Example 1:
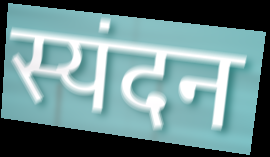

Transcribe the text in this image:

स्यंदन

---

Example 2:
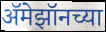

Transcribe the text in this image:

ॲमेझॉनच्या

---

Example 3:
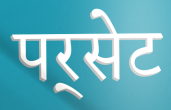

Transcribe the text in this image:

पर्सेट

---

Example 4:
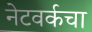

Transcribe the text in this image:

नेटवर्कचा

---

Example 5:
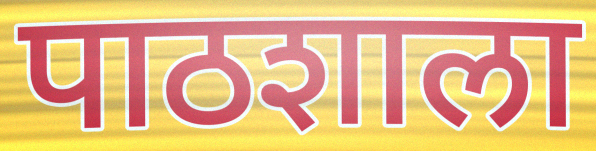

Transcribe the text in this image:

पाठशाला